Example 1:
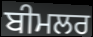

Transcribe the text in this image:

ਬੀਮਲਰ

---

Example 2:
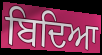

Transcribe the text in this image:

ਬਿਦਿਆ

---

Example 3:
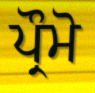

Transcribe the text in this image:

ਪ੍ਰੌਮੋ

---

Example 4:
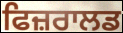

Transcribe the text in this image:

ਫਿਜ਼ਰਾਲਡ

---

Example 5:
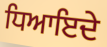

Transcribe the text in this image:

ਧਿਆਇਦੇ